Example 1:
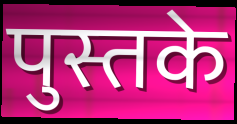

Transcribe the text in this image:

पुस्‍तके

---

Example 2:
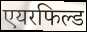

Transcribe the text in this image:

एयरफिल्ड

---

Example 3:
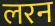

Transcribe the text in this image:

लरन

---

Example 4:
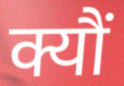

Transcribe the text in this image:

क्यौं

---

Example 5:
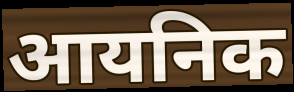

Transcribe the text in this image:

आयनिक